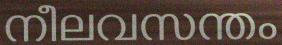
നീലവസന്തം